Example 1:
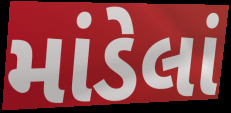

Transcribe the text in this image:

માંડેલાં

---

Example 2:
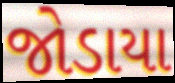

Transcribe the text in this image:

જોડાયા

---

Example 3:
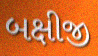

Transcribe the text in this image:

બક્ષીજી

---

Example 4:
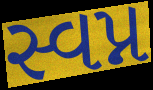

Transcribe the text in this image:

સ્વપ્ન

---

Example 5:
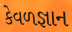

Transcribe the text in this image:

કેવળજ્ઞાન